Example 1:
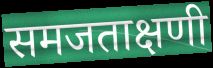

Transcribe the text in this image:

समजताक्षणी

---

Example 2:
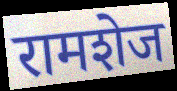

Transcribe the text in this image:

रामशेज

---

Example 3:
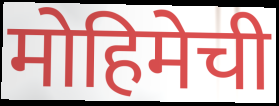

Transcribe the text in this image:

मोहिमेची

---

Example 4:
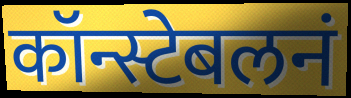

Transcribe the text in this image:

कॉन्स्टेबलनं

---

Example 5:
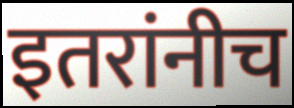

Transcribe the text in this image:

इतरांनीच